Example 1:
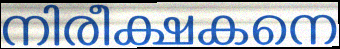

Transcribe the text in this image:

നിരീക്ഷകനെ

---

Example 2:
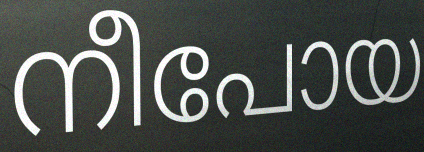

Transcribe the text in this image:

നീപോയ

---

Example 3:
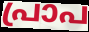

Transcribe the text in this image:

പ്രാപ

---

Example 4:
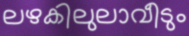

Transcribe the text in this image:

ലഴകിലുലാവീടും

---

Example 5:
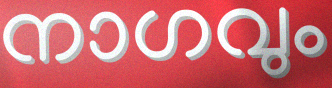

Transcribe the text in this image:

നാഗവും